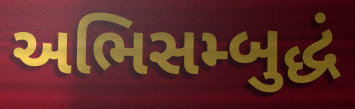
અભિસમ્બુદ્ધં